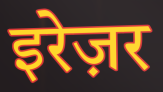
इरेज़र